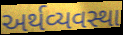
અર્થવ્યવસ્થા